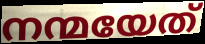
നന്മയേത്